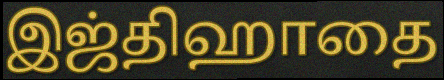
இஜ்திஹாதை